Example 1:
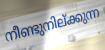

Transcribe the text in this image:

നീണ്ടുനില്ക്കുന്ന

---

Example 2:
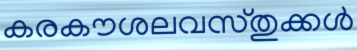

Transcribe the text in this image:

കരകൗശലവസ്തുക്കൾ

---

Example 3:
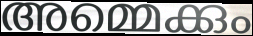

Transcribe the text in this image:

അമ്മെക്കും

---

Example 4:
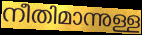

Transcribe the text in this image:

നീതിമാന്നുള്ള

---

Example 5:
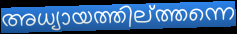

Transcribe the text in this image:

അധ്യായത്തില്ത്തന്നെ